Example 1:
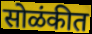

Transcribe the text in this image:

सोळंकीत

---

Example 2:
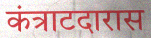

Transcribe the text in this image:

कंत्राटदारास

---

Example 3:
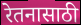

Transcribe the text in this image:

रेतनासाठी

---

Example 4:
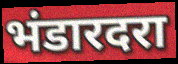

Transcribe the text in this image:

भंडारदरा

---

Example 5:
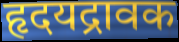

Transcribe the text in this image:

हृदयद्रावक